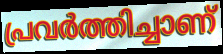
പ്രവർത്തിച്ചാണ്